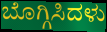
ಬೊಗ್ಗಿಸಿದಳು